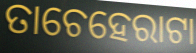
ତାଚେହେରାଟା